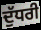
ਦੁੱਧਰੀ